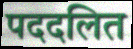
पददलित